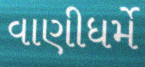
વાણીધર્મે